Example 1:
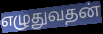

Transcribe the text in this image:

எழுதுவதன்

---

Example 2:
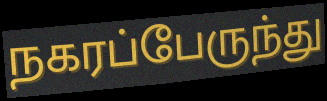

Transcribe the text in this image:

நகரப்பேருந்து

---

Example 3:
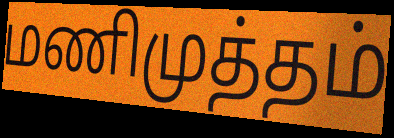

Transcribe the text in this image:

மணிமுத்தம்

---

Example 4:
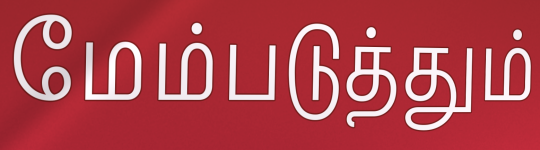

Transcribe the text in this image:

மேம்படுத்தும்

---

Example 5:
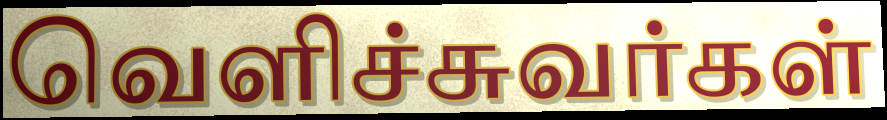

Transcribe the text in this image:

வெளிச்சுவர்கள்